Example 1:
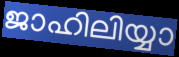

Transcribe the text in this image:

ജാഹിലിയ്യാ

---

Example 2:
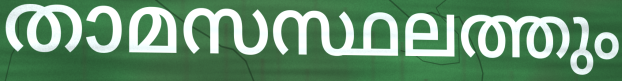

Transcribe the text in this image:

താമസസ്ഥലത്തും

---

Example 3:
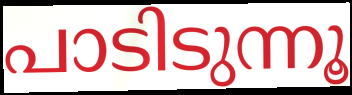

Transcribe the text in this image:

പാടിടുന്നൂ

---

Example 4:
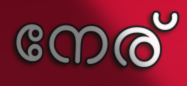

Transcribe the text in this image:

നേര്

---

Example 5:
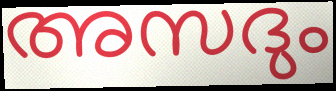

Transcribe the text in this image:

അസദും